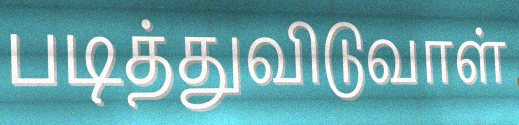
படித்துவிடுவாள்